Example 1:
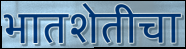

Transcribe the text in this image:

भातशेतीचा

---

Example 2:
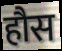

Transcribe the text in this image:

हौस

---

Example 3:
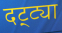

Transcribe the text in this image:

दट्ट्या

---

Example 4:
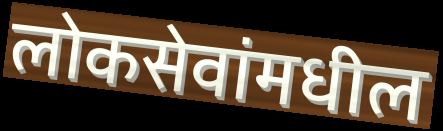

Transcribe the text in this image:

लोकसेवांमधील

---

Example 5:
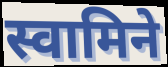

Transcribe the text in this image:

स्वामिने